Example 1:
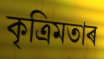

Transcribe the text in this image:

কৃত্ৰিমতাৰ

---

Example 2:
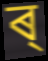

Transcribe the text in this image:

ৰ্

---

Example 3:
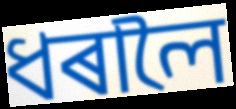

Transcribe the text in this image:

ধৰালৈ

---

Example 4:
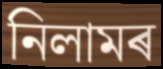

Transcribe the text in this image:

নিলামৰ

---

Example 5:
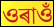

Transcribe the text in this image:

ওৰাওঁ